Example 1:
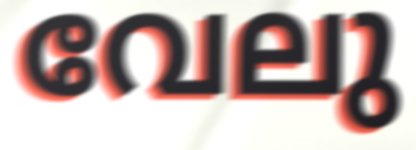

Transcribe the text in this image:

വേലു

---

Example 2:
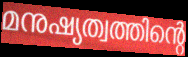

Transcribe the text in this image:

മനുഷ്യത്വത്തിന്റെ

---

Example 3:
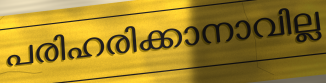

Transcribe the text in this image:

പരിഹരിക്കാനാവില്ല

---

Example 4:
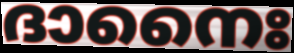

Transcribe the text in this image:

ദാനൈഃ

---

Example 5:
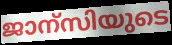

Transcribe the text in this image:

ജാന്സിയുടെ